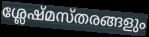
ശ്ലേഷ്മസ്തരങ്ങളും